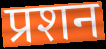
प्रशन